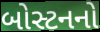
બોસ્ટનનો